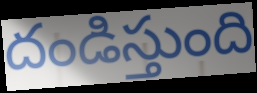
దండిస్తుంది